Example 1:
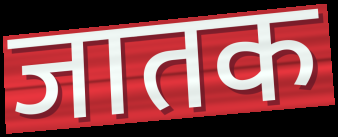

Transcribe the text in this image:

जातक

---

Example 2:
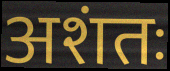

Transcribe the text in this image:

अशंतः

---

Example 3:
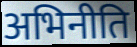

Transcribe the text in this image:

अभिनीति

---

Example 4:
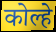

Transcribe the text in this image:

कोल्हे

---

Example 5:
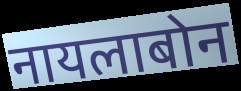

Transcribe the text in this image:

नायलाबोन